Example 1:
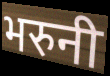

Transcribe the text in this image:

भरुनी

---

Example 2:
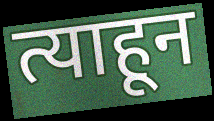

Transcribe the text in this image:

त्याहून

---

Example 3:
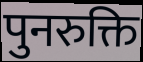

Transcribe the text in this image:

पुनरुक्ति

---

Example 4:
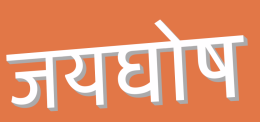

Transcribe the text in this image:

जयघोष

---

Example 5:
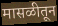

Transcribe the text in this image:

मासळीतून